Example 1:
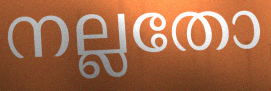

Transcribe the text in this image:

നല്ലതോ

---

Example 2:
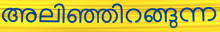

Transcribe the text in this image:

അലിഞ്ഞിറങ്ങുന്ന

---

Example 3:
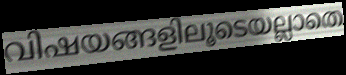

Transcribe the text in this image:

വിഷയങ്ങളിലൂടെയല്ലാതെ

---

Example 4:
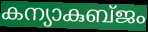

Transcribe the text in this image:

കന്യാകുബ്ജം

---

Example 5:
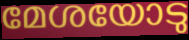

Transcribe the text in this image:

മേശയോടു